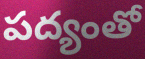
పద్యంతో